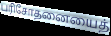
பரிசோதனையைத்